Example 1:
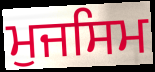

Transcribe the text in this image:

ਮੁਜਸਿਮ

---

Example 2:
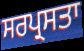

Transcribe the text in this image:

ਸਰਪ੍ਰਸਤਾ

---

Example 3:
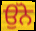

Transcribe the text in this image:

ਉੱਨੇ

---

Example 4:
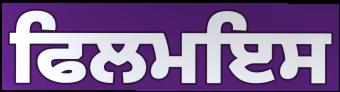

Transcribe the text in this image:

ਫਿਲਮਇਸ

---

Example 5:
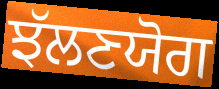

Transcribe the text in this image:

ਝੱਲਣਯੋਗ